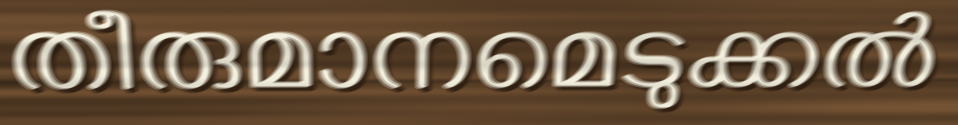
തീരുമാനമെടുക്കൽ